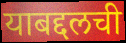
याबद्दलची